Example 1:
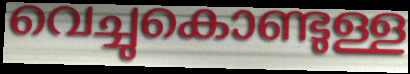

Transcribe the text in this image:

വെച്ചുകൊണ്ടുള്ള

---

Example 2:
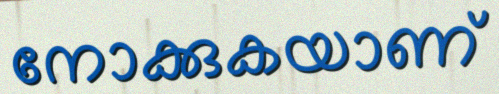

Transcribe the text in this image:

നോക്കുകയാണ്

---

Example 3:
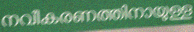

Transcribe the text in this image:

നവീകരണത്തിനായുള്ള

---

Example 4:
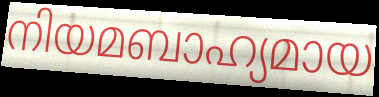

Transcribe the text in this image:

നിയമബാഹ്യമായ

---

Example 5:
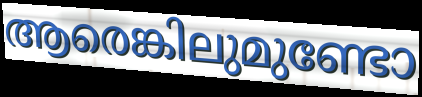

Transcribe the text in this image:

ആരെങ്കിലുമുണ്ടോ